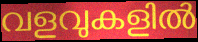
വളവുകളിൽ